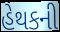
હેથકની